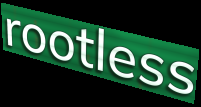
rootless